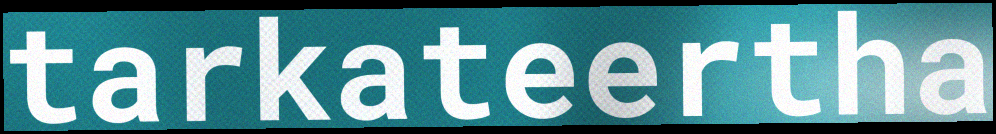
tarkateertha